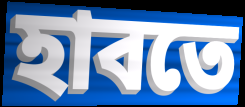
হাবতে